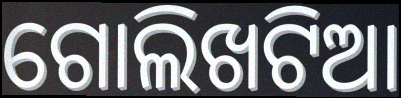
ଗୋଲିଖଟିଆ